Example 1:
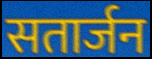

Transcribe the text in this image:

सतार्जन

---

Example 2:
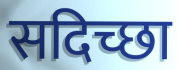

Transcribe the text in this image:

सदिच्छा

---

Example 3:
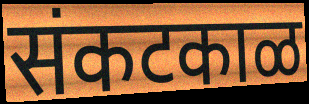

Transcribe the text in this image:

संकटकाळ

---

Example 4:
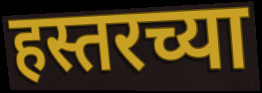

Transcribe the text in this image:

हस्तरच्या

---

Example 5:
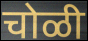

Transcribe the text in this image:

चोळी